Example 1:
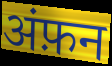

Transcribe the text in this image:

अंफ़न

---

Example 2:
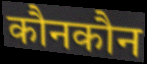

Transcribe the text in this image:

कौनकौन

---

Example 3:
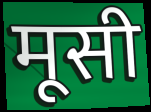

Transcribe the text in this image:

मूसी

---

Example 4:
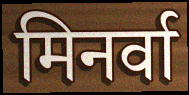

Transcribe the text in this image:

मिनर्वा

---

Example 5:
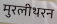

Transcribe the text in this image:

मुरलीथरन